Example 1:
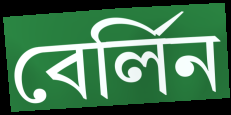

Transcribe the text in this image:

বের্লিন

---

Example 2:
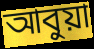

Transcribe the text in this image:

আবুয়া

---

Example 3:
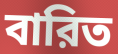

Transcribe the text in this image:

বারিত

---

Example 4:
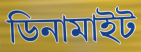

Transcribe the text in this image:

ডিনামাইট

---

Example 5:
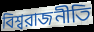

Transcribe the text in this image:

বিশ্বরাজনীতি